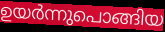
ഉയർന്നുപൊങ്ങിയ